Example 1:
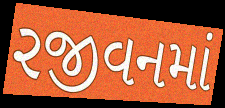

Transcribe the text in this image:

રજીવનમાં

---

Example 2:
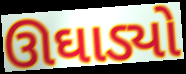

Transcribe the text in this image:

ઊઘાડ્યો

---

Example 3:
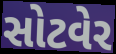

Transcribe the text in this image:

સોટવેર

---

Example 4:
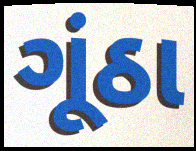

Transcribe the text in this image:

ગૂંઠા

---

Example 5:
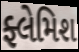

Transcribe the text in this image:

ફ્લેમિશ